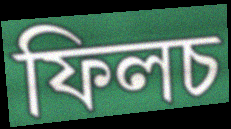
ফিলচ